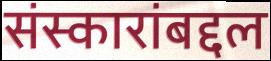
संस्कारांबद्दल